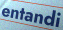
entandi